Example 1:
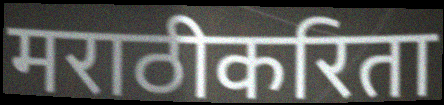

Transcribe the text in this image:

मराठीकरिता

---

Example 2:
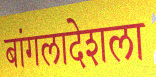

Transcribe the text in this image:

बांगलादेशला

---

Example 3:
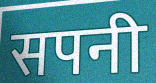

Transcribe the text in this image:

सपनी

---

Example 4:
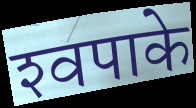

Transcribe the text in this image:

श्वपाके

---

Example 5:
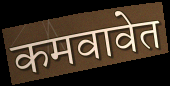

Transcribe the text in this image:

कमवावेत